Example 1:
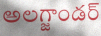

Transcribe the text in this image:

అలగ్జాండర్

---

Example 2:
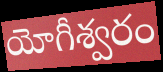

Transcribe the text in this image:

యోగీశ్వరం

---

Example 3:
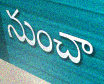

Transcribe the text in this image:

నుంచా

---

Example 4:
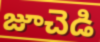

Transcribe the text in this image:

జూచెడి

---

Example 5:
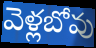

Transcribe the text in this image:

వెళ్లబోవు